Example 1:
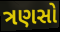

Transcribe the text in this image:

ત્રણસો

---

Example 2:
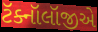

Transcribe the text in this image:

ટૅક્નૉલૉજીએ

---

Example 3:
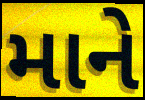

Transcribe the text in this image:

માને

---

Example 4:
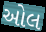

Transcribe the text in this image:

ઓલ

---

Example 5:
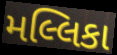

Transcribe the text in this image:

મલ્લિકા